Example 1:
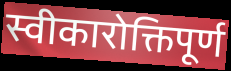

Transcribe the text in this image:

स्वीकारोक्तिपूर्ण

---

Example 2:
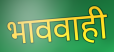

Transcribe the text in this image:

भाववाही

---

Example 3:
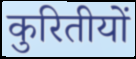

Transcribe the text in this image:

कुरितीयों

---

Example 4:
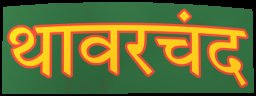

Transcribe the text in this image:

थावरचंद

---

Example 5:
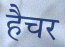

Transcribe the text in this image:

हैचर